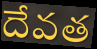
దేవత